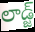
లాడ్జ్